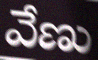
వేణు